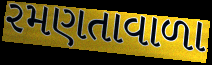
રમણતાવાળા